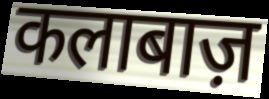
कलाबाज़